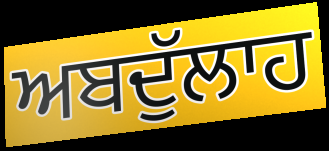
ਅਬਦੁੱਲਾਹ